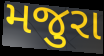
મજુરા